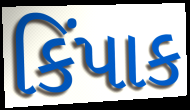
કિંપાક